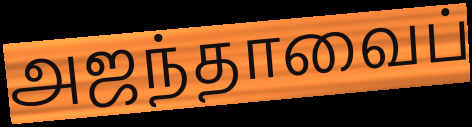
அஜந்தாவைப்